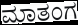
ಮಾತಂಗ